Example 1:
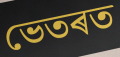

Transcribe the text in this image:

ভেতৰত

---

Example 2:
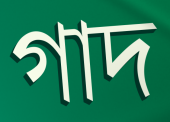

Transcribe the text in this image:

গাদ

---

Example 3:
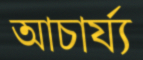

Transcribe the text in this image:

আচাৰ্য্য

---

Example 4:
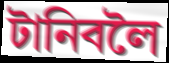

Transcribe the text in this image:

টানিবলৈ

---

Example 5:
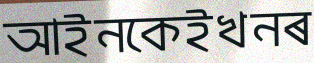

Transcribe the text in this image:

আইনকেইখনৰ